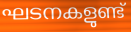
ഘടനകളുണ്ട്